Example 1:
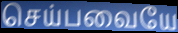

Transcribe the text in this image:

செய்பவையே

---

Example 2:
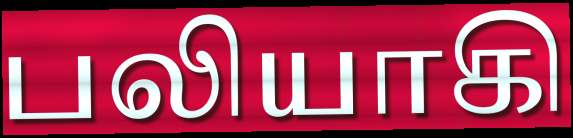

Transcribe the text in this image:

பலியாகி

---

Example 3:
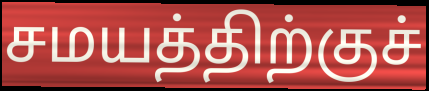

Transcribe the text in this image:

சமயத்திற்குச்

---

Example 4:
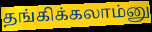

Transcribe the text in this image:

தங்கிக்கலாம்னு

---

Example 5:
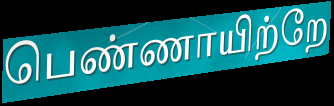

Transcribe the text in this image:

பெண்ணாயிற்றே